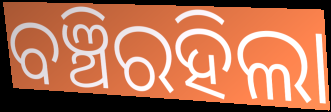
ବଞ୍ଚିରହିଲା